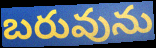
బరువును